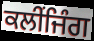
ਕਲੀਂਜਿੰਗ